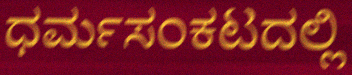
ಧರ್ಮಸಂಕಟದಲ್ಲಿ